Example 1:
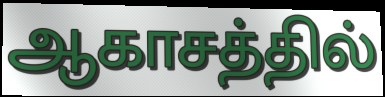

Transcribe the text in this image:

ஆகாசத்தில்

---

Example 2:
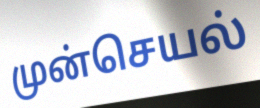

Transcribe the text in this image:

முன்செயல்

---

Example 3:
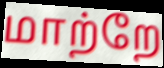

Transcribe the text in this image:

மாற்றே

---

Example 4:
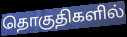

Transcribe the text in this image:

தொகுதிகளில்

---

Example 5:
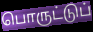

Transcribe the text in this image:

பொருட்டுப்